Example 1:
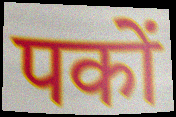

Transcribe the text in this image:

पकों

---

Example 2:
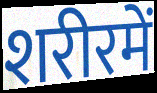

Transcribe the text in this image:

शरीरमें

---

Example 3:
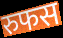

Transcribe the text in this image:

रुफस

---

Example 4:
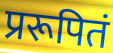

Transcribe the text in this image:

प्ररूपितं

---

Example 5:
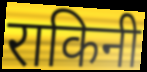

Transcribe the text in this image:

राकिनी